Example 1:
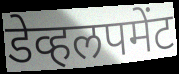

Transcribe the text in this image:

डेव्हलपमेंट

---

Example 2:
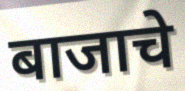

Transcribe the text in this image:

बाजाचे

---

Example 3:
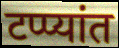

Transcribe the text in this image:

टप्प्यांत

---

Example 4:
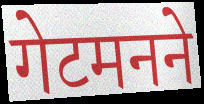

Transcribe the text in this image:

गेटमनने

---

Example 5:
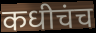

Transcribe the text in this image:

कधीचंच